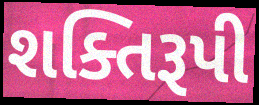
શક્તિરૂપી